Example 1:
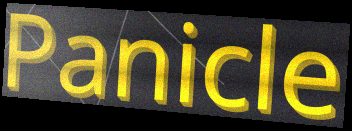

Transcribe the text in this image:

Panicle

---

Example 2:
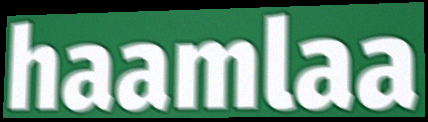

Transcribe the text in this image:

haamlaa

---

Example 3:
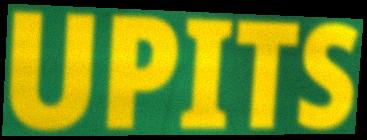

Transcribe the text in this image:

UPITS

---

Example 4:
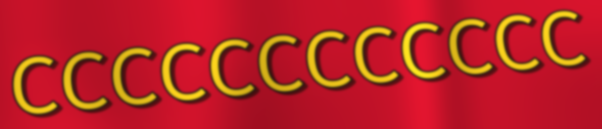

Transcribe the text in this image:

CCCCCCCCCCCC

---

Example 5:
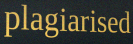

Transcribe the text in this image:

plagiarised